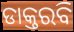
ଡାକ୍ତରବି